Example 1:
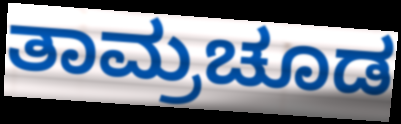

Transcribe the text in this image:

ತಾಮ್ರಚೂಡ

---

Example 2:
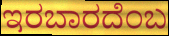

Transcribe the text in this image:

ಇರಬಾರದೆಂಬ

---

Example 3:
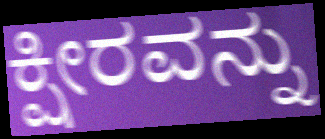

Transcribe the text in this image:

ಕ್ಷೀರವನ್ನು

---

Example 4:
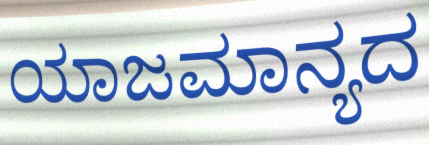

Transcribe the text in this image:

ಯಾಜಮಾನ್ಯದ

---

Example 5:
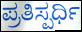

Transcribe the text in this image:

ಪ್ರತಿಸ್ಪರ್ಧಿ